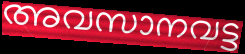
അവസാനവട്ട